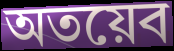
অতয়েব